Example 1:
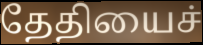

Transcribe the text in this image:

தேதியைச்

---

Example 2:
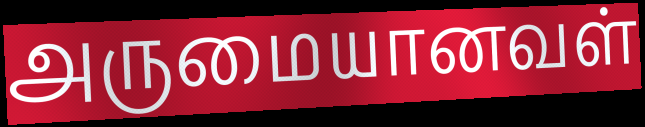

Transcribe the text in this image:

அருமையானவள்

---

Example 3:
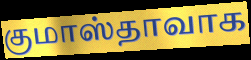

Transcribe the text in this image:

குமாஸ்தாவாக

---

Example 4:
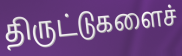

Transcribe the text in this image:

திருட்டுகளைச்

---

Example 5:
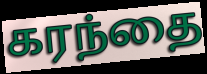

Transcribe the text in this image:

கரந்தை